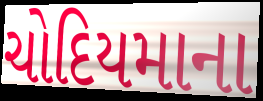
ચોદિયમાના